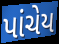
પાંચેય